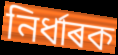
নিৰ্ধাৰক